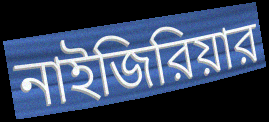
নাইজিরিয়ার